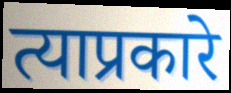
त्याप्रकारे